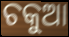
ଚକୁଆ